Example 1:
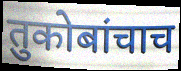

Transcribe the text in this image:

तुकोबांचाच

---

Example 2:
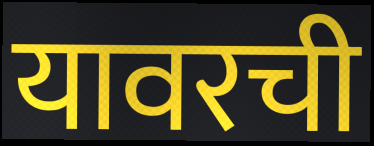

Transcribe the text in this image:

यावरची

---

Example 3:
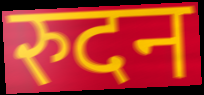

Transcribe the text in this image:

रुदन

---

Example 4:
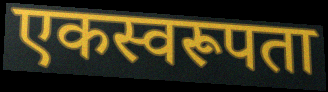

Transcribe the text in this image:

एकस्वरूपता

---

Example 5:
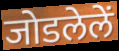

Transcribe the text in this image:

जोडलेलें